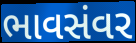
ભાવસંવર